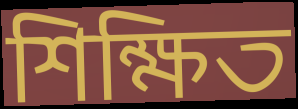
শিক্ষিত